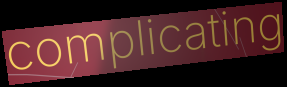
complicating